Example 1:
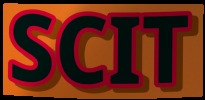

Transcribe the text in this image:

SCIT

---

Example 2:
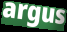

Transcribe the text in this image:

argus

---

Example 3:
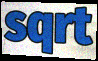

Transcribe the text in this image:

sqrt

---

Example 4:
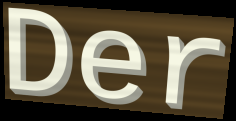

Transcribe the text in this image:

Der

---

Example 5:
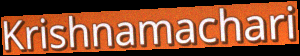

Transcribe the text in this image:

Krishnamachari